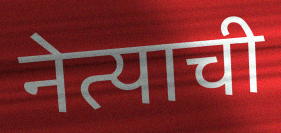
नेत्याची